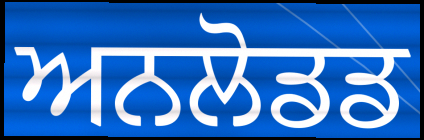
ਅਨਲੋਡਡ